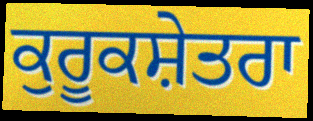
ਕੁਰੂਕਸ਼ੇਤਰਾ